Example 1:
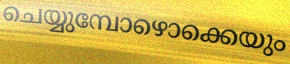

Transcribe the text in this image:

ചെയ്യുമ്പോഴൊക്കെയും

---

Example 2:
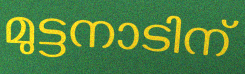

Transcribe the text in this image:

മുട്ടനാടിന്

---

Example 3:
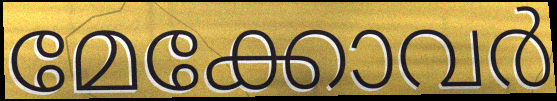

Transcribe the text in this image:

മേക്കോവർ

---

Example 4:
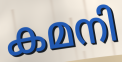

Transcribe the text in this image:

കമനി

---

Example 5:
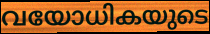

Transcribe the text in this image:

വയോധികയുടെ